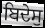
ਬਿਦੇਸੁ